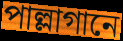
পাল্লাগানে